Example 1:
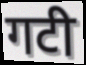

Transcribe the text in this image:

गटी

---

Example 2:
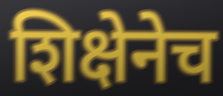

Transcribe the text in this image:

शिक्षेनेच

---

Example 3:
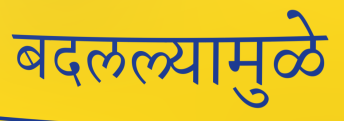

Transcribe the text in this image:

बदलल्यामुळे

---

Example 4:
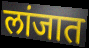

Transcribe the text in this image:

लांजात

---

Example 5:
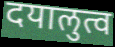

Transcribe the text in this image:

दयालुत्व